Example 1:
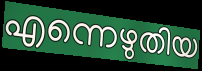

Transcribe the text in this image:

എന്നെഴുതിയ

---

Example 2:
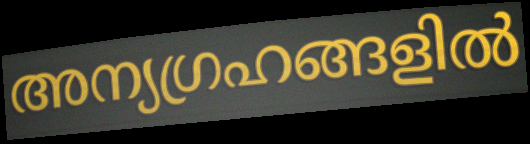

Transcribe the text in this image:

അന്യഗ്രഹങ്ങളിൽ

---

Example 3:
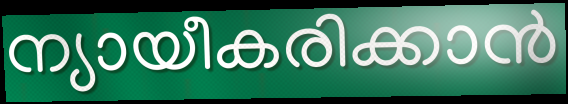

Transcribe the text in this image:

ന്യായീകരിക്കാൻ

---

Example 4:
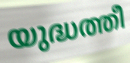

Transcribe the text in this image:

യുദ്ധത്തീ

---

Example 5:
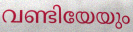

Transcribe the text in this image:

വണ്ടിയേയും